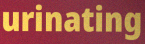
urinating